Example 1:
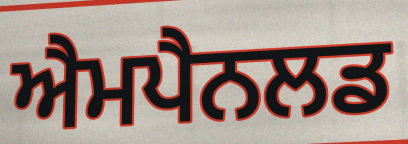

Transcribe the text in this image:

ਐਮਪੈਨਲਡ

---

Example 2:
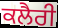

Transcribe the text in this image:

ਕਲੈਰੀ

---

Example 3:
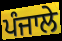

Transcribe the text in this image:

ਪੰਜਾਲੇ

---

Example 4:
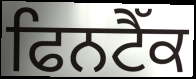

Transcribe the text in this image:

ਫਿਨਟੈੱਕ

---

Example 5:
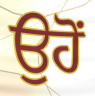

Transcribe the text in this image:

ਉਹੋਂ